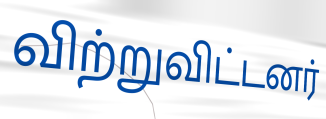
விற்றுவிட்டனர்